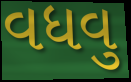
વધવુ